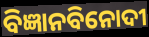
ବିଜ୍ଞାନବିନୋଦୀ